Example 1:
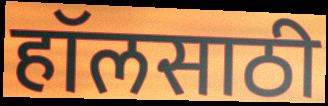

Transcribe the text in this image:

हॉलसाठी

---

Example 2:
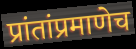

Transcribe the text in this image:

प्रांतांप्रमाणेच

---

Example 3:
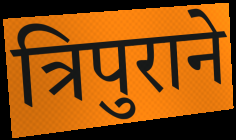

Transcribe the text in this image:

त्रिपुराने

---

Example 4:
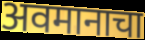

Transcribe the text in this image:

अवमानाचा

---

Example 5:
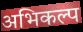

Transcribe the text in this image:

अभिकल्प